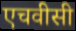
एचवीसी